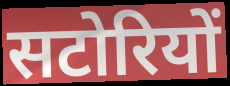
सटोरियों